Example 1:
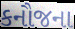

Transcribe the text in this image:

કનૌજના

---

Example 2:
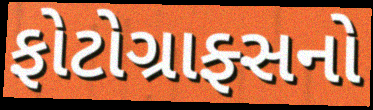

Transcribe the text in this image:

ફોટોગ્રાફ્સનો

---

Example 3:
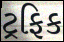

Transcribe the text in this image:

ટ્રફિક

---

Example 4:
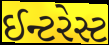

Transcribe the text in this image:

ઈન્ટરેસ્ટ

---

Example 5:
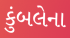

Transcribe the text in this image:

કુંબલેના